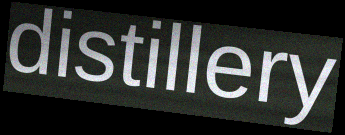
distillery